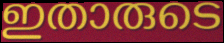
ഇതാരുടെ